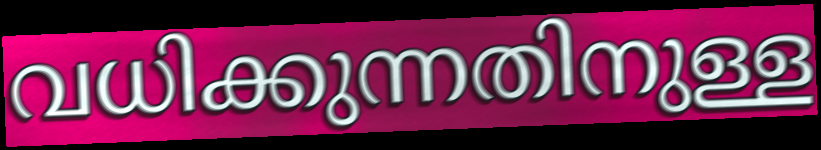
വധിക്കുന്നതിനുള്ള